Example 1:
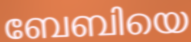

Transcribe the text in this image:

ബേബിയെ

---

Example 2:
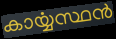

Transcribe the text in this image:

കാൎയ്യസ്ഥൻ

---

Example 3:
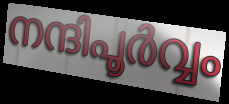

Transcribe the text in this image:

നന്ദിപൂർവ്വം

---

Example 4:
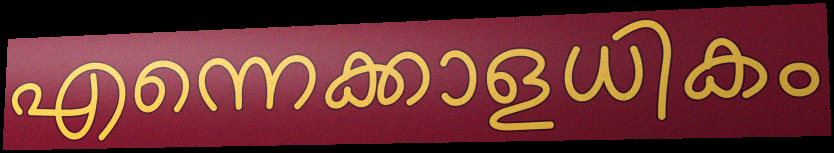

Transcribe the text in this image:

എന്നെക്കാളധികം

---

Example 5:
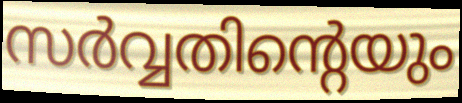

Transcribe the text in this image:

സർവ്വതിന്റെയും